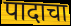
पादाचा